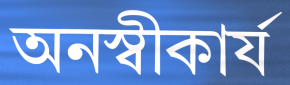
অনস্বীকাৰ্য